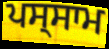
ਪਸ੍ਸਾਮ